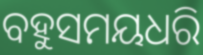
ବହୁସମୟଧରି